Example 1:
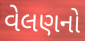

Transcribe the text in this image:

વેલણનો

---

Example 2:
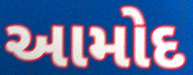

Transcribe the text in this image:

આમોદ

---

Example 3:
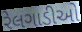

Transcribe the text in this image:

રેલગાડીઓ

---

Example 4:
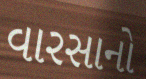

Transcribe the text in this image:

વારસાનો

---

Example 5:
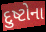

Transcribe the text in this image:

દુષ્ટોના